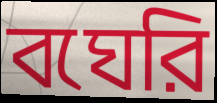
বঘেরি